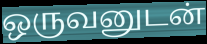
ஒருவனுடன்